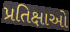
પ્રતિક્ષાઓ